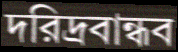
দরিদ্রবান্ধব